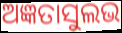
ଅଜ୍ଞତାସୁଲଭ